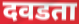
दवडता